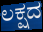
ಲಕ್ಷದ